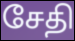
சேதி